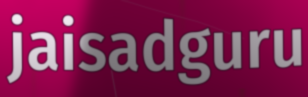
jaisadguru